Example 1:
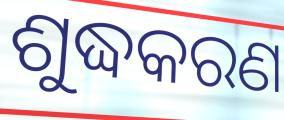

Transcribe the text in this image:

ଶୁଦ୍ଧକରଣ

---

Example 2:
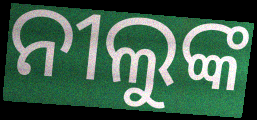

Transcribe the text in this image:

ନୀଲୁଙ୍କ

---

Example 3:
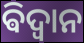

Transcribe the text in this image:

ଵିଦ୍ଵାନ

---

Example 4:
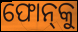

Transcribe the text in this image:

ଫୋନ୍‌କୁ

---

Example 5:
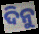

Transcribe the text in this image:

ଦିନୁ